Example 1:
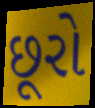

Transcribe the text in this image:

છૂરો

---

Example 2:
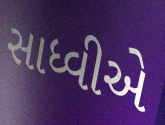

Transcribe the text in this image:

સાધ્વીએ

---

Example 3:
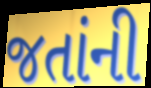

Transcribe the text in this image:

જતાંની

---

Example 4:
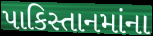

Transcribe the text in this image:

પાકિસ્તાનમાંના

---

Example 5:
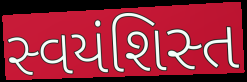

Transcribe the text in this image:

સ્વયંશિસ્ત